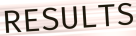
RESULTS